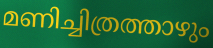
മണിച്ചിത്രത്താഴും